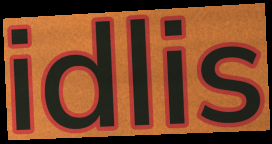
idlis